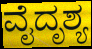
ವೈದೃಶ್ಯ